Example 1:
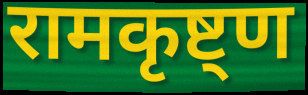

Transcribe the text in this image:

रामकृष्ट्ण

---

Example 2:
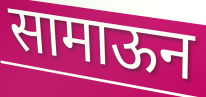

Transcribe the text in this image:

सामाऊन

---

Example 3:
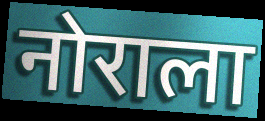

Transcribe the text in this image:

नोराला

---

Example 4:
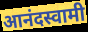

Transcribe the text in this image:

आनंदस्वामी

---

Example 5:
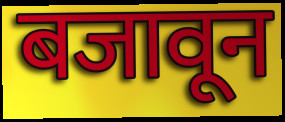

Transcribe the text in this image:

बजावून